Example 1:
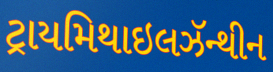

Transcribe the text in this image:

ટ્રાયમિથાઇલઝૅન્થીન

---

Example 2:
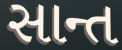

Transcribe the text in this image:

સાન્ત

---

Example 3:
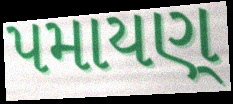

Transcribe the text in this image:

પમાયણ્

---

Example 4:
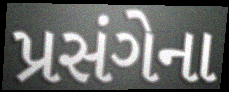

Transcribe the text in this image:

પ્રસંગેના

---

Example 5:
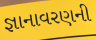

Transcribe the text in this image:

જ્ઞાનાવરણની